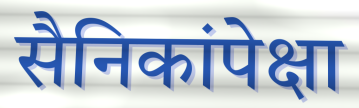
सैनिकांपेक्षा